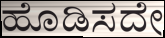
ಹೊಡಿಸದೇ